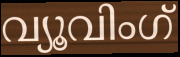
വ്യൂവിംഗ്